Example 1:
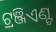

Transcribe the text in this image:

ଟ୍ରଞ୍ଜିଏଣ୍ଟ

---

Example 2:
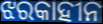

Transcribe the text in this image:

ଝରକାହୀନ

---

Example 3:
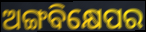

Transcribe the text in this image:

ଅଙ୍ଗବିକ୍ଷେପର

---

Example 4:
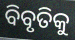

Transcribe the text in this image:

ବିବୃତିକୁ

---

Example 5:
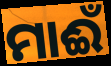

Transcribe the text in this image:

ମାଈଁ